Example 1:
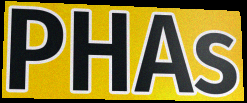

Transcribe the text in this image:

PHAs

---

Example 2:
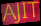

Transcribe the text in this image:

AJIT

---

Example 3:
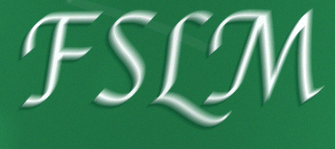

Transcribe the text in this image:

FSLM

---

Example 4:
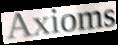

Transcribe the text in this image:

Axioms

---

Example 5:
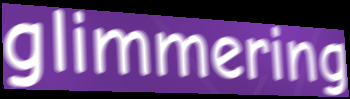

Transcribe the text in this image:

glimmering